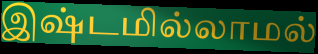
இஷ்டமில்லாமல்